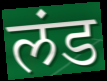
लंड